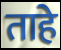
ताहे